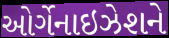
ઓર્ગેનાઇઝેશને